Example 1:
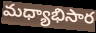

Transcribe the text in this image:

మధ్యాభిసార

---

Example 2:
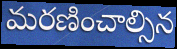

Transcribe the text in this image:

మరణించాల్సిన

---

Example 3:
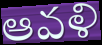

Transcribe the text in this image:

ఆవళి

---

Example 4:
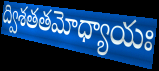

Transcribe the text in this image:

ద్విశతతమోధ్యాయః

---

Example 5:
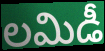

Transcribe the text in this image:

లమిడీ